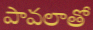
పావలాతో